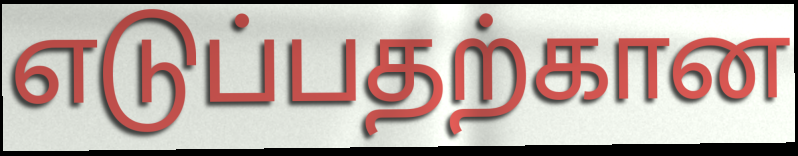
எடுப்பதற்கான